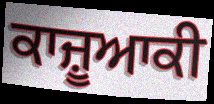
ਕਾਜ਼ੂਆਕੀ